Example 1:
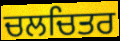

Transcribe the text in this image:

ਚਲਚਿਤਰ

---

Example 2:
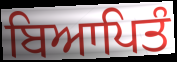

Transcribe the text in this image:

ਬਿਆਪਿਤੰ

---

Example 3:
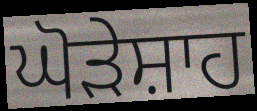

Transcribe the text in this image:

ਘੋੜੇਸ਼ਾਹ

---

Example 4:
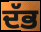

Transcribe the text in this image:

ਦੱਭ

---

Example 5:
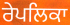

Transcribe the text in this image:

ਰੇਪਲਿਕਾ